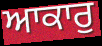
ਆਕਾਰੁ